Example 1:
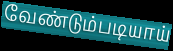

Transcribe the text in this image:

வேண்டும்படியாய்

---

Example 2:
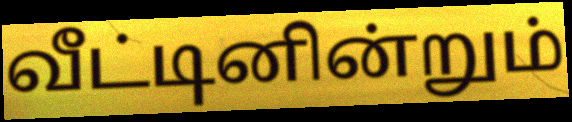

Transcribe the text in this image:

வீட்டினின்றும்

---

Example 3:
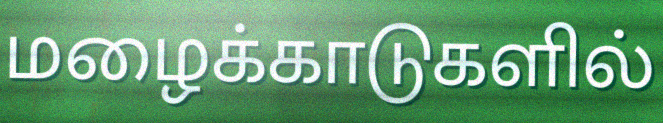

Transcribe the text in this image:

மழைக்காடுகளில்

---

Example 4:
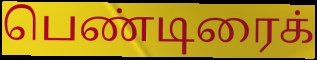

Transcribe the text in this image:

பெண்டிரைக்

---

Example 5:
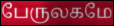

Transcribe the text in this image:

பேருலகமே